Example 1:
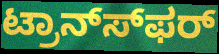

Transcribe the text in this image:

ಟ್ರಾನ್ಸ್‍ಫರ್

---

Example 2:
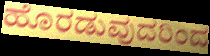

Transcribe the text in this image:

ಹೊರಡುವುದರಿಂದ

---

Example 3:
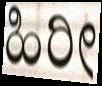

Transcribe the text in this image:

ಹಿರೀ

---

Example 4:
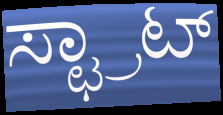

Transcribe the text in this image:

ಸ್ಟ್ರಾಟ್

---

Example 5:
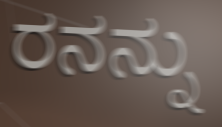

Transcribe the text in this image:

ರನನ್ನು